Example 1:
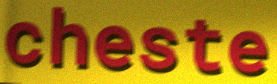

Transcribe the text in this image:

cheste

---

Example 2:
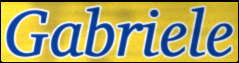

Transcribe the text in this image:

Gabriele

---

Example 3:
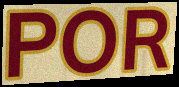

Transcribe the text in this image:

POR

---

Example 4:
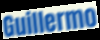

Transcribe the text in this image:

Guillermo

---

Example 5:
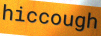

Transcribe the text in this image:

hiccough